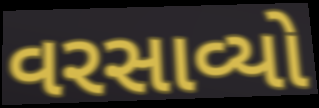
વરસાવ્યો